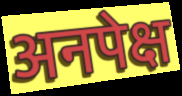
अनपेक्ष